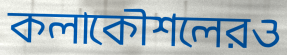
কলাকৌশলেরও